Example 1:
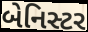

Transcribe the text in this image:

બેનિસ્ટર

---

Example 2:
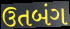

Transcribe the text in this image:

ઉતબંગ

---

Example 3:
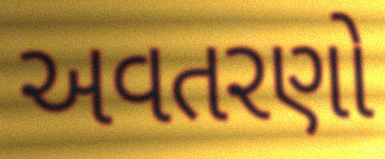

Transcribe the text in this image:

અવતરણો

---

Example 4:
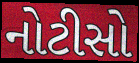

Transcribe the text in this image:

નોટીસો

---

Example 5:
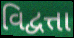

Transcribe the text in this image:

વિદ્વત્તા